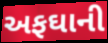
અફઘાની